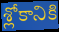
శ్లోకానికి